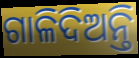
ଗାଳିଦିଅନ୍ତି